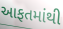
આફતમાંથી